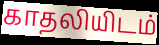
காதலியிடம்